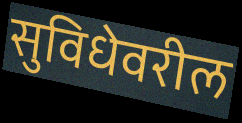
सुविधेवरील